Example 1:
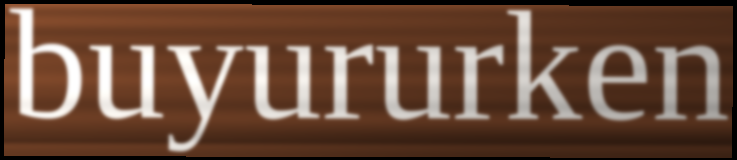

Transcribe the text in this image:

buyururken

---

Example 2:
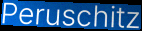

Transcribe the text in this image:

Peruschitz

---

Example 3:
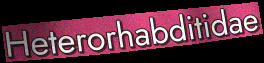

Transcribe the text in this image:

Heterorhabditidae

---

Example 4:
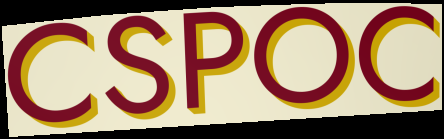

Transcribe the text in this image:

CSPOC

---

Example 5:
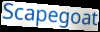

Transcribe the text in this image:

Scapegoat